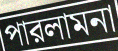
পারলামনা